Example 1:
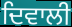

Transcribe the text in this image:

ਦਿਵਾਲੀ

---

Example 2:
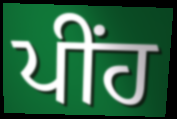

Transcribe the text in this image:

ਪੀਂਹ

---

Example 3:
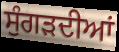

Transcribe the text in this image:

ਸੁੰਗੜਦੀਆਂ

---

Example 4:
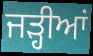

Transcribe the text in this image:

ਜੜ੍ਹੀਆਂ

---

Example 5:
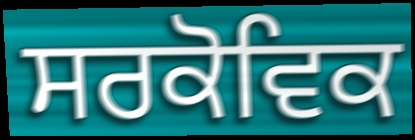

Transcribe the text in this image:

ਸਰਕੋਵਿਕ